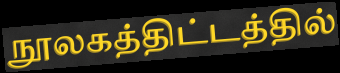
நூலகத்திட்டத்தில்